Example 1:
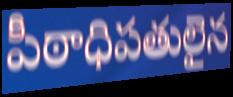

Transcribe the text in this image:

పీఠాధిపతులైన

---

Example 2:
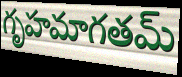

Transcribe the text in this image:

గృహమాగతమ్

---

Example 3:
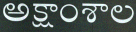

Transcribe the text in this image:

అక్షాంశాల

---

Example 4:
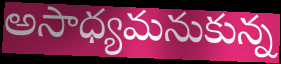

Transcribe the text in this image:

అసాధ్యమనుకున్న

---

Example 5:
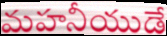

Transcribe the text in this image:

మహనీయుడే